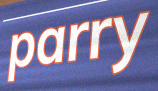
parry